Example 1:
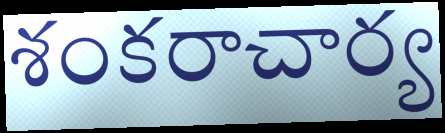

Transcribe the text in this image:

శంకరాచార్య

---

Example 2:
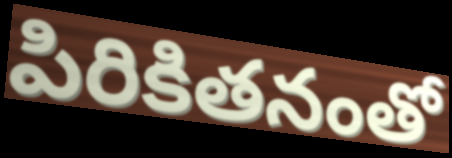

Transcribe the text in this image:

పిరికితనంతో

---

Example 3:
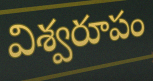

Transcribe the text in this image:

విశ్వరూపం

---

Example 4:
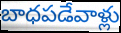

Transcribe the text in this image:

బాధపడేవాళ్లు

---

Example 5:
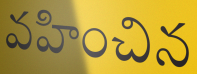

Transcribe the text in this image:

వహించిన